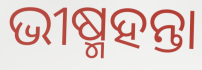
ଭୀଷ୍ମହନ୍ତା